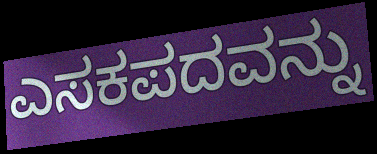
ಎಸಕಪದವನ್ನು